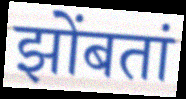
झोंबतां